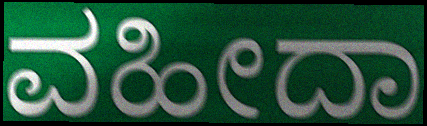
ವಹೀದಾ